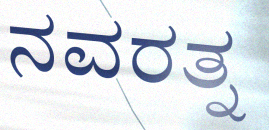
ನವರತ್ನ